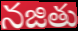
నజితు